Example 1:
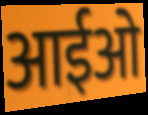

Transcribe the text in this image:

आईओ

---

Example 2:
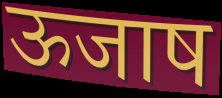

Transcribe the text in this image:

ऊजाष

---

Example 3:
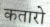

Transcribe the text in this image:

कतारो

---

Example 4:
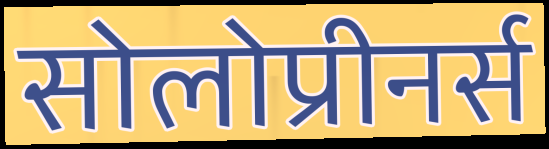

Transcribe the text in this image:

सोलोप्रीनर्स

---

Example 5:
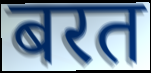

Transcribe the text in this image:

बरत